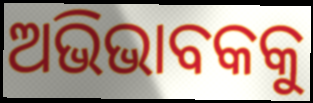
ଅଭିଭାବକକୁ